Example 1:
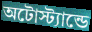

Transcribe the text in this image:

অটোস্ট্যান্ডে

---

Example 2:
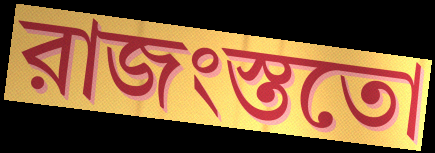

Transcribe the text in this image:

রাজংস্ততো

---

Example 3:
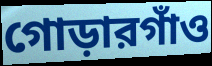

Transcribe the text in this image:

গোড়ারগাঁও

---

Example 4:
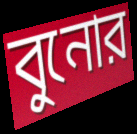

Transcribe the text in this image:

বুনোর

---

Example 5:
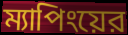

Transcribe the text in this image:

ম্যাপিংয়ের